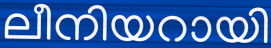
ലീനിയറായി